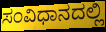
ಸಂವಿಧಾನದಲ್ಲಿ